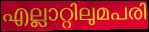
എല്ലാറ്റിലുമപരി